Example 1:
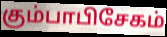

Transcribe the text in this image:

கும்பாபிசேகம்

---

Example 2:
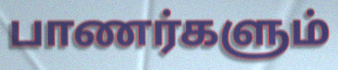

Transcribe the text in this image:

பாணர்களும்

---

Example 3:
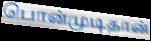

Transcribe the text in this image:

பொன்முடிதான்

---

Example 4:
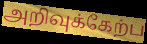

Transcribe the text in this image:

அறிவுக்கேற்ப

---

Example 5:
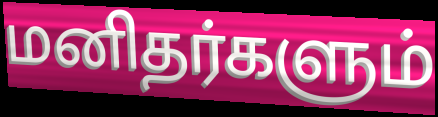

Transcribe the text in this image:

மனிதர்களும்